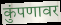
कुंपणावर